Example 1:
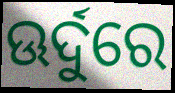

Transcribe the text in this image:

ଊର୍ଦୁରେ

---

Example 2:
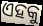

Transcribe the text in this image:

ଏହକୁ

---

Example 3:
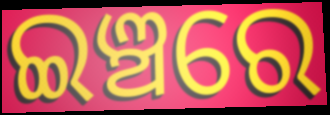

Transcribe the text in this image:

ଇଞ୍ଚରେ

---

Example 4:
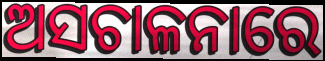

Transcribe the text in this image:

ଅସଚାଳନାରେ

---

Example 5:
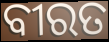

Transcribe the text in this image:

ବୀରତ